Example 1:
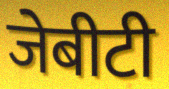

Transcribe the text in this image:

जेबीटी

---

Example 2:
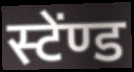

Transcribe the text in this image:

स्टेंण्ड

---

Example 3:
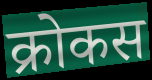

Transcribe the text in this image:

क्रोकस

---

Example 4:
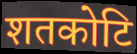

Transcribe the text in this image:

शतकोटि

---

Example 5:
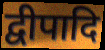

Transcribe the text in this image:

द्वीपादि